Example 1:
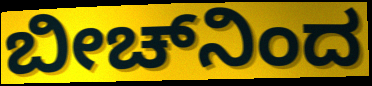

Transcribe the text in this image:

ಬೀಚ್‌ನಿಂದ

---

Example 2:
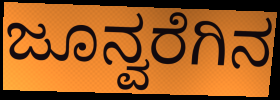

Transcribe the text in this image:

ಜೂನ್ವರೆಗಿನ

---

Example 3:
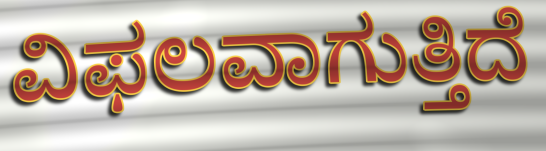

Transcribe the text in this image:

ವಿಫಲವಾಗುತ್ತಿದೆ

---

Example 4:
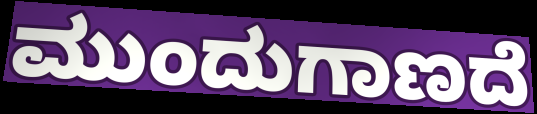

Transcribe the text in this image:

ಮುಂದುಗಾಣದೆ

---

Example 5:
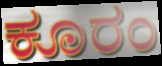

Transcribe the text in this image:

ಕೂರಂ